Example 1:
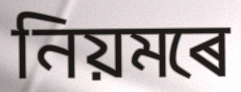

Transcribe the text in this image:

নিয়মৰে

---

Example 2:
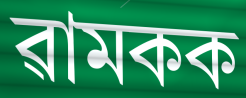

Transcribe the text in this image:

ৱামকক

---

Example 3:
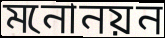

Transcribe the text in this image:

মনোনয়ন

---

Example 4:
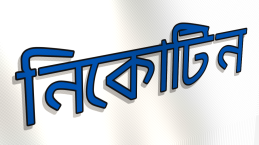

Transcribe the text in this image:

নিকোটিন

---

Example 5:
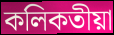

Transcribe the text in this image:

কলিকতীয়া